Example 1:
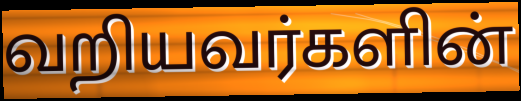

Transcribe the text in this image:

வறியவர்களின்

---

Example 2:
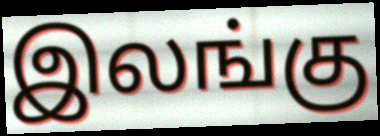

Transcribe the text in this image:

இலங்கு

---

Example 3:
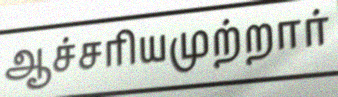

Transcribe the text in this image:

ஆச்சரியமுற்றார்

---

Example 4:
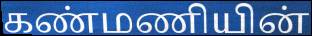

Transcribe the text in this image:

கண்மணியின்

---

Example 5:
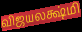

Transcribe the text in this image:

விஜயலக்ஷ்மி